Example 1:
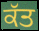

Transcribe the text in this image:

ਕੱਤ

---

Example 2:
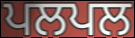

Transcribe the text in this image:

ਪਲਪਲ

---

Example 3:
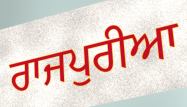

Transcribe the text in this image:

ਰਾਜਪੁਰੀਆ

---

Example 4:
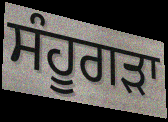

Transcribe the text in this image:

ਸੰਹੂਗੜਾ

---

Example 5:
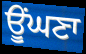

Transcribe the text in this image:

ਊਂਘਣਾ